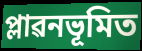
প্লাৱনভূমিত